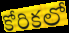
కోరికలో